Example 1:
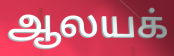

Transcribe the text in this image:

ஆலயக்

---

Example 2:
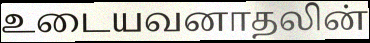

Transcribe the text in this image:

உடையவனாதலின்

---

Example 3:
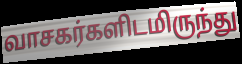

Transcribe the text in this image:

வாசகர்களிடமிருந்து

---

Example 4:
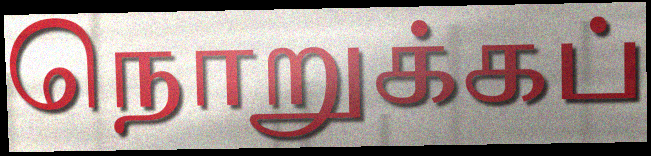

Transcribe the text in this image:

நொறுக்கப்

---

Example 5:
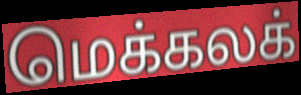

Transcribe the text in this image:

மெக்கலக்